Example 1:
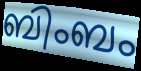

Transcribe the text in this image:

ബിംബം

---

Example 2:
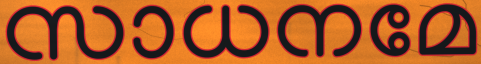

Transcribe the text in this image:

സാധനമേ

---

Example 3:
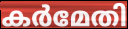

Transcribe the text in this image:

കർമേതി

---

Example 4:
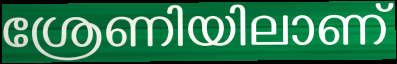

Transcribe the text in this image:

ശ്രേണിയിലാണ്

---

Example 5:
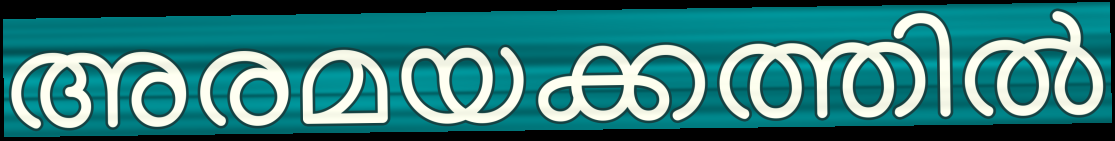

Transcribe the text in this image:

അരമയക്കത്തിൽ